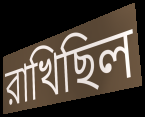
রাখিছিল